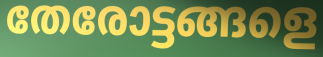
തേരോട്ടങ്ങളെ